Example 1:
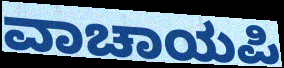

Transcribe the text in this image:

ವಾಚಾಯಪಿ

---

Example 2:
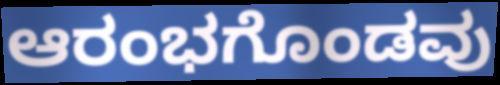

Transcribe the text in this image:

ಆರಂಭಗೊಂಡವು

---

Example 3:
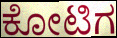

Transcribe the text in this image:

ಕೋಟಿಗ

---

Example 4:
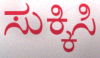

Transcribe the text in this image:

ಸುಕ್ಕಿಸಿ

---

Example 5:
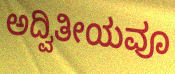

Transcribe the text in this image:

ಅದ್ವಿತೀಯವೂ